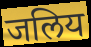
जलिय